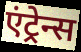
एंट्रेन्स